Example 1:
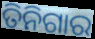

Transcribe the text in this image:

ତିନିଗାର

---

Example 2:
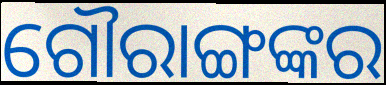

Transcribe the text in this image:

ଗୌରାଙ୍ଗଙ୍କର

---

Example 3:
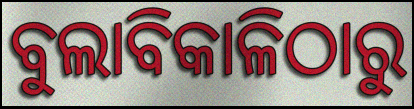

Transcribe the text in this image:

ବୁଲାବିକାଳିଠାରୁ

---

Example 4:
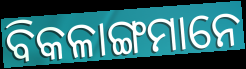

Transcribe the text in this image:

ବିକଳାଙ୍ଗମାନେ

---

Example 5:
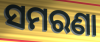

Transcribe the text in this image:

ସମରଣା